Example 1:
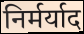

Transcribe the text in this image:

निर्मर्याद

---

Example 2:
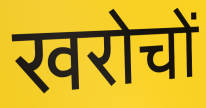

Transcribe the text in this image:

खरोचों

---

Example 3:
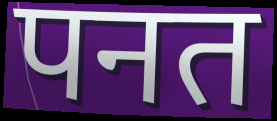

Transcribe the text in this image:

पनत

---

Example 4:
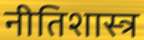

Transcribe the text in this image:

नीतिशास्त्र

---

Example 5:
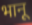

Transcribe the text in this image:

भानू